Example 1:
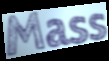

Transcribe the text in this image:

Mass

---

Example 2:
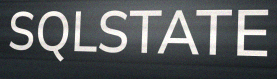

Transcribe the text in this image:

SQLSTATE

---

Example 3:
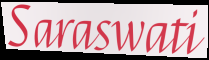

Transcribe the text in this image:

Saraswati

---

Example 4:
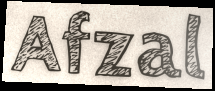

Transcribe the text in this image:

Afzal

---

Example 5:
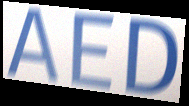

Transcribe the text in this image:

AED